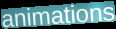
animations